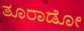
ತೂರಾಡೋ